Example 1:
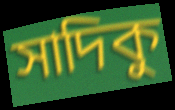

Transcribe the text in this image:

সাদিকু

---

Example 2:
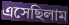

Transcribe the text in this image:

এসেছিলাম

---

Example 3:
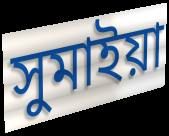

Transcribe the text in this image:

সুমাইয়া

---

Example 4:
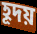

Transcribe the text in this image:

হূদয়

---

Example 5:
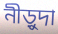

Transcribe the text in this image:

নীড়ুদা